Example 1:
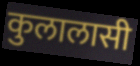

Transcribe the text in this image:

कुलालासी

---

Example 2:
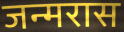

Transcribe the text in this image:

जन्मरास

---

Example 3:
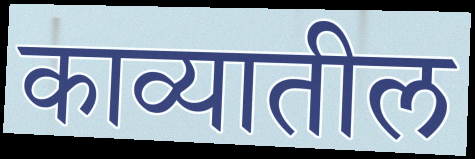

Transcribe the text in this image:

काव्यातील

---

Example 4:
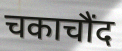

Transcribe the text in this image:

चकाचौंद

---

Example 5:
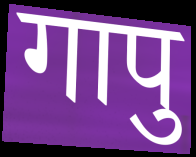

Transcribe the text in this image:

गापु